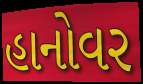
હાનોવર